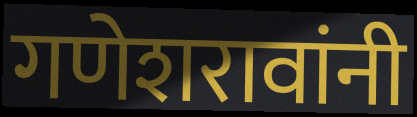
गणेशरावांनी